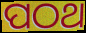
ପଠଥ